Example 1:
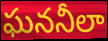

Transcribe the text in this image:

ఘననీలా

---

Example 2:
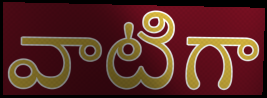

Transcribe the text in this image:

వాటిగా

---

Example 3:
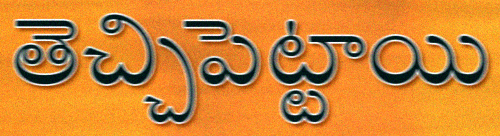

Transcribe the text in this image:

తెచ్చిపెట్టాయి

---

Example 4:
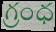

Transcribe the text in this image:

గ్రంధ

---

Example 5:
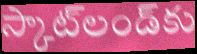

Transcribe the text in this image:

స్కాట్‌లండ్‌కు